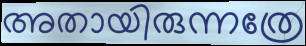
അതായിരുന്നത്രേ